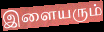
இளையரும்